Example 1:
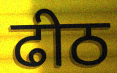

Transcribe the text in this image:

ढीठ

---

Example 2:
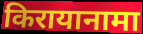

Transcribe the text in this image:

किरायानामा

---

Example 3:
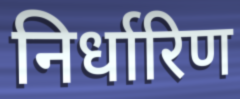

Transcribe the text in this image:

निर्धारिण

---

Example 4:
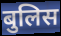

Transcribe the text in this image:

बुलिस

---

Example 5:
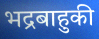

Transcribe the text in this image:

भद्रबाहुकी